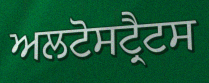
ਅਲਟੋਸਟ੍ਰੈਟਸ